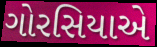
ગોરસિયાએ